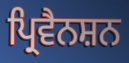
ਪ੍ਰਿਵੈਨਸ਼ਨ